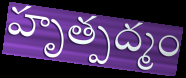
హృత్పద్మం